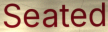
Seated